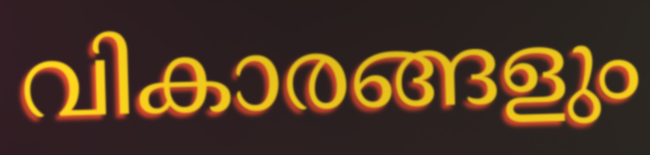
വികാരങ്ങളും